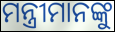
ମନ୍ତ୍ରୀମାନଙ୍କୁ